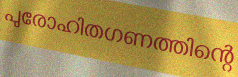
പുരോഹിതഗണത്തിന്റെ